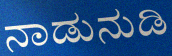
ನಾಡುನುಡಿ